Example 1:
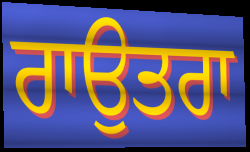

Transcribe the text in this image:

ਰਾਉਤਰਾ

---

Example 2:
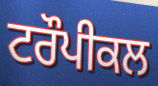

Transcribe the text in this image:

ਟਰੌਪੀਕਲ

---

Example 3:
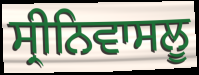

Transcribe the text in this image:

ਸ੍ਰੀਨਿਵਾਸਲੂ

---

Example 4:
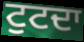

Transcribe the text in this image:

ਟੁਟਦਾ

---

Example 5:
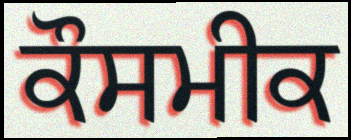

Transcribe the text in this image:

ਕੌਸਮੀਕ